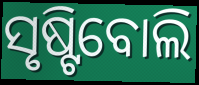
ସୃଷ୍ଟିବୋଲି